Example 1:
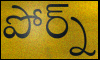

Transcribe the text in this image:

పోర్న్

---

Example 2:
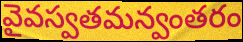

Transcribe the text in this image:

వైవస్వతమన్వంతరం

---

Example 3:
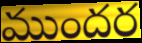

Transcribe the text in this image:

ముందర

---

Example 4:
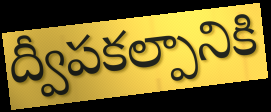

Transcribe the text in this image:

ద్వీపకల్పానికి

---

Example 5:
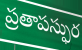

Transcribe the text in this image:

ప్రతాపస్ఫుర